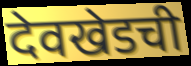
देवखेडची